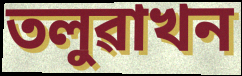
তলুৱাখন